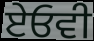
ਏਓਵੀ